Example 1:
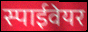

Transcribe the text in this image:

स्पाईवेयर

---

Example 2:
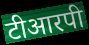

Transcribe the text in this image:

टीआरपी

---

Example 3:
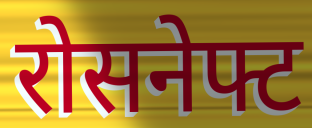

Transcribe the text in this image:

रोसनेफ्ट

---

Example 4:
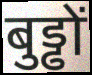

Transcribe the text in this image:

बुड्ढों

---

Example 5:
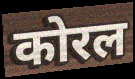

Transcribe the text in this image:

कोरल